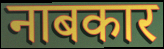
नाबकार